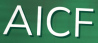
AICF